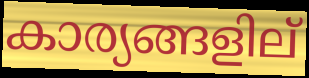
കാര്യങ്ങളില്